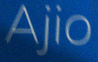
Ajio